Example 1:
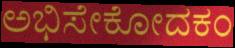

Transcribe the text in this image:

ಅಭಿಸೇಕೋದಕಂ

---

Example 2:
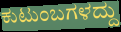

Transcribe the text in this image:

ಕುಟುಂಬಗಳದ್ದು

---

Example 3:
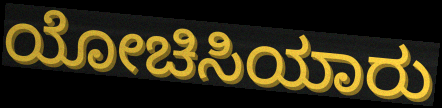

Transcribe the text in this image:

ಯೋಚಿಸಿಯಾರು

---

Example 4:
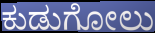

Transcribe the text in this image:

ಕುಡುಗೋಲು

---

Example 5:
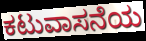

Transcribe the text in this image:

ಕಟುವಾಸನೆಯ